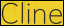
Cline